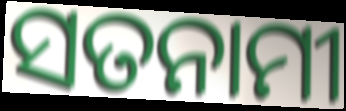
ସତନାମୀ